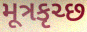
મૂત્રકૃચ્છ